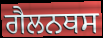
ਗੈਲਨਥਸ